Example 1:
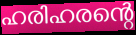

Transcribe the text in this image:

ഹരിഹരന്റെ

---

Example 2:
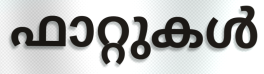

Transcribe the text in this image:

ഫാറ്റുകൾ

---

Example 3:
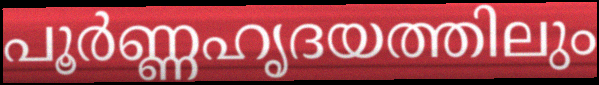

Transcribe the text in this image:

പൂർണ്ണഹൃദയത്തിലും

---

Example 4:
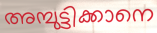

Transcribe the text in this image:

അമ്പുട്ടിക്കാനെ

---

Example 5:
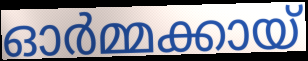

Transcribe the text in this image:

ഓർമ്മക്കായ്